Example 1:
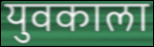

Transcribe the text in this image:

युवकाला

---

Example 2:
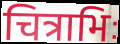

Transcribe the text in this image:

चित्राभिः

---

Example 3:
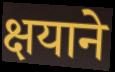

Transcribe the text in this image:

क्षयाने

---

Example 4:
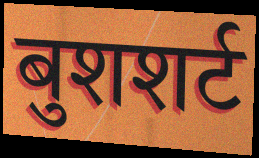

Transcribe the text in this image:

बुशशर्ट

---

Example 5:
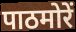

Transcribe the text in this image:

पाठमोरें